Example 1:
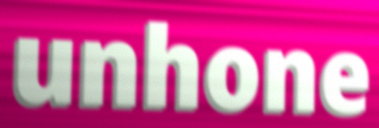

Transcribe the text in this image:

unhone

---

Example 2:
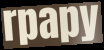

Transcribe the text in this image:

rpapy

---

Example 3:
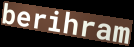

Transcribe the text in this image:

berihram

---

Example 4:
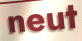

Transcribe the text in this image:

neut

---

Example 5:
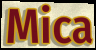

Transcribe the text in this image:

Mica